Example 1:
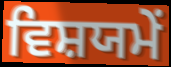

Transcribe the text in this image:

ਵਿਸ਼ਯਮੇਂ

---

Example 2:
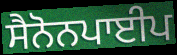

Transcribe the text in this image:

ਸੈਨੋਨਪਾਈਪ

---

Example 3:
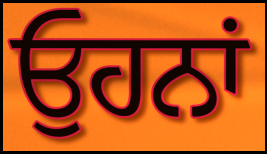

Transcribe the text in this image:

ਓੁਹਨਾਂ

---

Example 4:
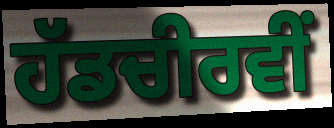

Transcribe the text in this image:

ਹੱਡਚੀਰਵੀਂ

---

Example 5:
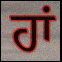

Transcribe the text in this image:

ਹਾਂ